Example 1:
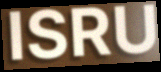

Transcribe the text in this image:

ISRU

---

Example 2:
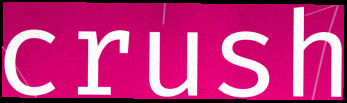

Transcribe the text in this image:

crush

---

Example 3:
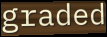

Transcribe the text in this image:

graded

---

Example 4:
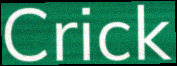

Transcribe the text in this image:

Crick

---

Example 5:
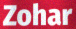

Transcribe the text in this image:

Zohar